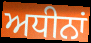
ਅਧੀਨਾਂ